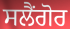
ਸਲੈਂਗੋਰ